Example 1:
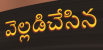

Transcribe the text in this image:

వెల్లడిచేసిన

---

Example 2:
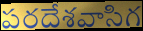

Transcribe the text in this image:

పరదేశవాసిగ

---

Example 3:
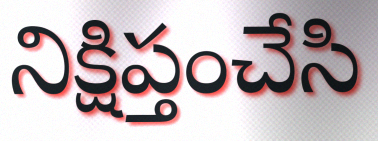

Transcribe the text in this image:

నిక్షిప్తంచేసి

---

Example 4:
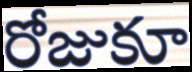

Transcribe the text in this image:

రోజుకూ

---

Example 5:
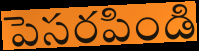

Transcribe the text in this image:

పెసరపిండి